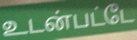
உடன்பட்டே